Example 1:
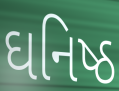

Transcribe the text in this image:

ઘનિષ્ઠ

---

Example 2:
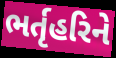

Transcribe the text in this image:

ભર્તૃહરિને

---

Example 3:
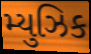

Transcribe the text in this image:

મ્યુઝિક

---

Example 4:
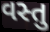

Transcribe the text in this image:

વસ્તુ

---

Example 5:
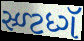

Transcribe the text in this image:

સ્ર્ળ્ટધ્ગૅ